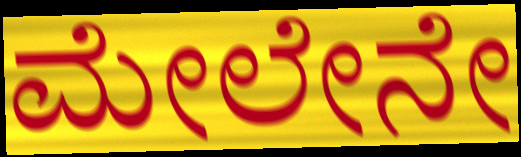
ಮೇಲೇನೇ